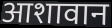
आशावान